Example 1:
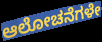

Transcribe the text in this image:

ಆಲೋಚನೆಗಳೇ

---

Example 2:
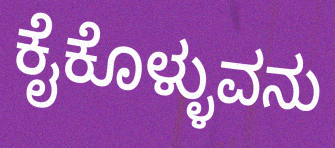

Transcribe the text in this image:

ಕೈಕೊಳ್ಳುವನು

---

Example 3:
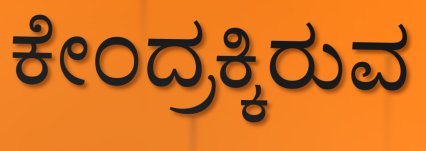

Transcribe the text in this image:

ಕೇಂದ್ರಕ್ಕಿರುವ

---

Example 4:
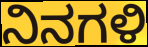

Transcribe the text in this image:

ನಿನಗಳಿ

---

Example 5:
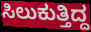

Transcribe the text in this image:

ಸಿಲುಕುತ್ತಿದ್ದ